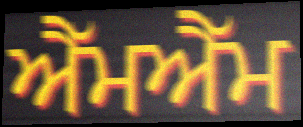
ਐੱਮਐੱਮ